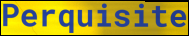
Perquisite